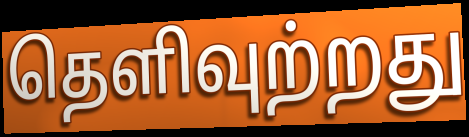
தெளிவுற்றது